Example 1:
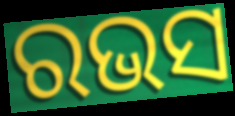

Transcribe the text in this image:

ରଭସ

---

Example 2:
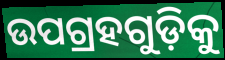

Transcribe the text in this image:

ଉପଗ୍ରହଗୁଡ଼ିକୁ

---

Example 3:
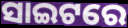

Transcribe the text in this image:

ସାଇଟରେ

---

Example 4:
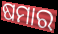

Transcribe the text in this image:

ଷମାର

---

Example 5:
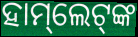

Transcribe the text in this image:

ହାମ୍‌ଲେଟ୍‌ଙ୍କ